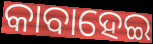
କାବାହେଇ